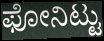
ಫೋನಿಟ್ಟು